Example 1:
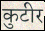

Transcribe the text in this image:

कुटीर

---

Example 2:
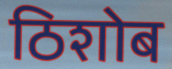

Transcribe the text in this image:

ठिशोब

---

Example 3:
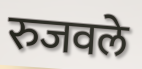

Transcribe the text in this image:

रुजवले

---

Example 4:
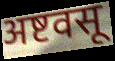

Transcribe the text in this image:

अष्टवसू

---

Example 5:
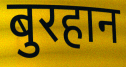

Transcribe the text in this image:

बुरहान